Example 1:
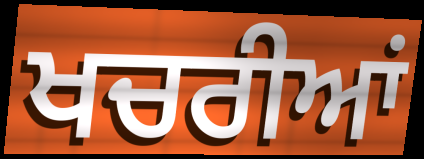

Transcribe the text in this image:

ਖਚਰੀਆਂ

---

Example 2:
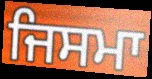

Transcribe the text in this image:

ਜਿਸਮਾ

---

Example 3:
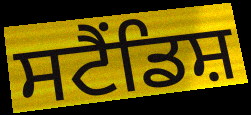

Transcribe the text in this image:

ਸਟੈਂਡਿਸ਼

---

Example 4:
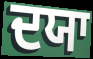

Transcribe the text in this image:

ਦਯਾ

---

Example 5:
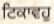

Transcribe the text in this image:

ਟਿਕਾਵਹੁ